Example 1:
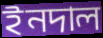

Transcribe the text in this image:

ইনদাল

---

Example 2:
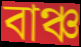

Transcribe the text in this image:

বাঞ্চ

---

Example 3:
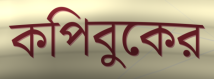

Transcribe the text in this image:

কপিবুকের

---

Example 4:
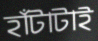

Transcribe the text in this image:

হাঁটাটাই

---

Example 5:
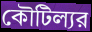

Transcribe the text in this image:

কৌটিল্যর